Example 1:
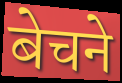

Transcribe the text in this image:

बेचने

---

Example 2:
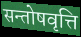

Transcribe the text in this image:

सन्तोषवृत्ति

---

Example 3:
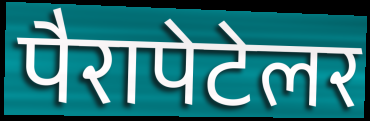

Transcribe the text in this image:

पैरापेटेलर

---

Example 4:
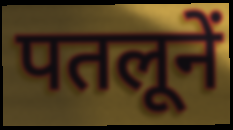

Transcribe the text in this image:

पतलूनें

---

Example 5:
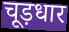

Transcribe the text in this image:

चूड़धार